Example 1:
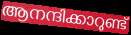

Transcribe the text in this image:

ആനന്ദിക്കാറുണ്ട്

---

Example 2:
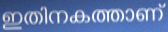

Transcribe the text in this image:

ഇതിനകത്താണ്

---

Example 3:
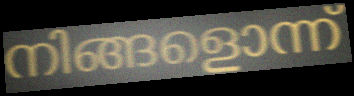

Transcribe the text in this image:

നിങ്ങളൊന്ന്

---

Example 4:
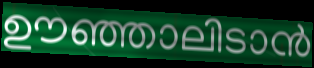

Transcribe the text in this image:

ഊഞ്ഞാലിടാൻ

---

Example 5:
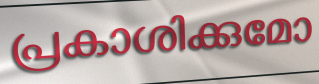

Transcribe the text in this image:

പ്രകാശിക്കുമോ